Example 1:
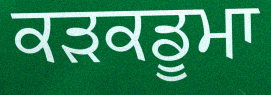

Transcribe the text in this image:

ਕੜਕਡੂਮਾ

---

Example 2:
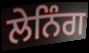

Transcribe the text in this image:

ਲੇਨਿੰਗ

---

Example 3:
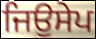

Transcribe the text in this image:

ਜਿਉਸੇਪ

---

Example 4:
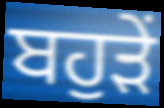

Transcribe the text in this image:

ਬਹੁੜੇਂ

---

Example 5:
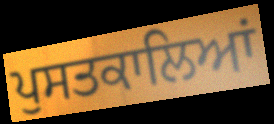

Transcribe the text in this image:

ਪੁਸਤਕਾਲਿਆਂ